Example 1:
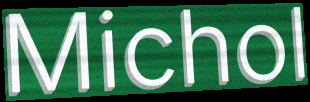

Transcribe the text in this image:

Michol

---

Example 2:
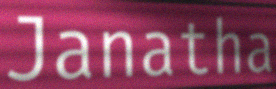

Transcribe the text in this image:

Janatha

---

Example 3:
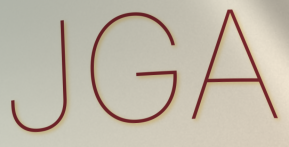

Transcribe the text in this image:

JGA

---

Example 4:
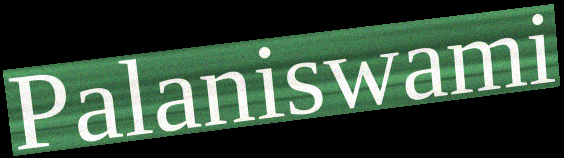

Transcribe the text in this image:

Palaniswami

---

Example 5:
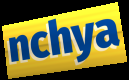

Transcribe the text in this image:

nchya